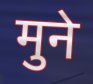
मुने